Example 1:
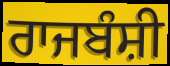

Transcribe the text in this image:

ਰਾਜਬੰਸ਼ੀ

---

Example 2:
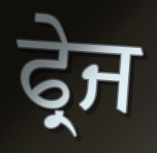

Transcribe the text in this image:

ਫ੍ਰੇਜ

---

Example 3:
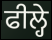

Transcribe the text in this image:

ਫੀਲ੍ਹੇ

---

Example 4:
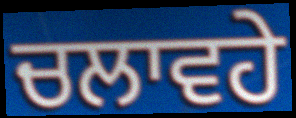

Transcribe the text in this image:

ਚਲਾਵਹੇ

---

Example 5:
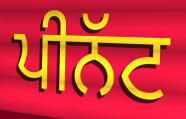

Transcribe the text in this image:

ਪੀਨੱਟ